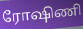
ரோஷிணி